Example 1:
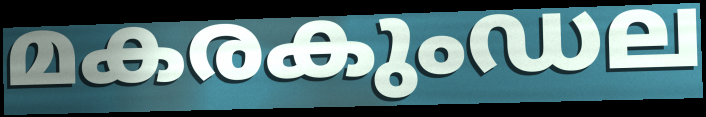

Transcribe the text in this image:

മകരകുംഡല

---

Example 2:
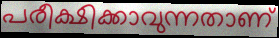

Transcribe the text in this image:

പരീക്ഷിക്കാവുന്നതാണ്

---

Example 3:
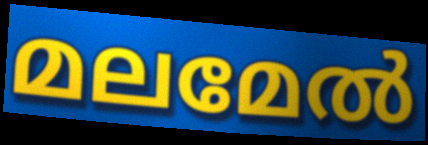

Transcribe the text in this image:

മലമേൽ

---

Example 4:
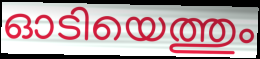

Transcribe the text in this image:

ഓടിയെത്തും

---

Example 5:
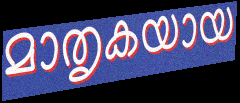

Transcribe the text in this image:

മാതൃകയായ